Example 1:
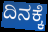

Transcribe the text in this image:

ದಿನಕ್ಕೆ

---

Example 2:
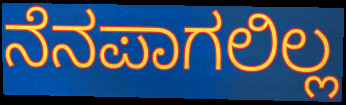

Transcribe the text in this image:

ನೆನಪಾಗಲಿಲ್ಲ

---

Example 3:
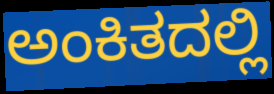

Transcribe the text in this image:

ಅಂಕಿತದಲ್ಲಿ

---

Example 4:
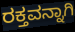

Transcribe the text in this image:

ರಕ್ತವನ್ನಾಗಿ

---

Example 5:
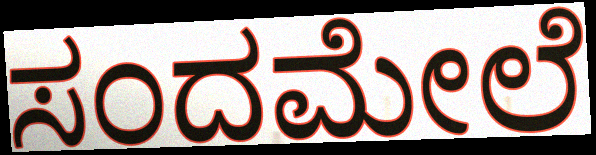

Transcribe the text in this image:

ಸಂದಮೇಲೆ